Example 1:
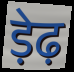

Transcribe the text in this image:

ड़ेढ़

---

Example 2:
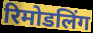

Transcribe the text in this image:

रिमोडलिंग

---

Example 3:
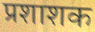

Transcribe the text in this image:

प्रशाशक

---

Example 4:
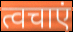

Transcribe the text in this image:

त्वचाएं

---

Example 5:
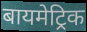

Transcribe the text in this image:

बायमेट्रिक